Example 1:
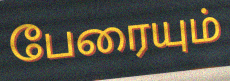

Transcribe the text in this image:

பேரையும்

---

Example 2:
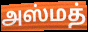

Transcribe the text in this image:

அஸ்மத்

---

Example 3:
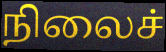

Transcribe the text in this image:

நிலைச்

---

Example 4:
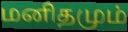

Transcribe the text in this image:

மனிதமும்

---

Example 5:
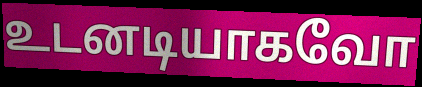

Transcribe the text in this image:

உடனடியாகவோ